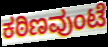
ಕಠಿಣವುಂಟೆ